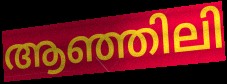
ആഞ്ഞിലി